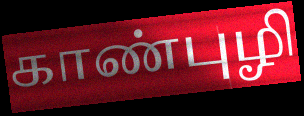
காண்புழி